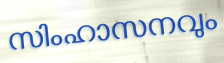
സിംഹാസനവും